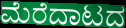
ಮೆರೆದಾಟದ